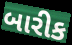
બારીક